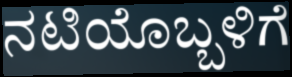
ನಟಿಯೊಬ್ಬಳಿಗೆ